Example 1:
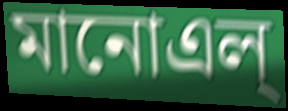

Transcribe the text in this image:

মানোএল্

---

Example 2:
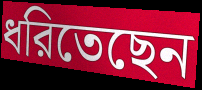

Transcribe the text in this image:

ধরিতেছেন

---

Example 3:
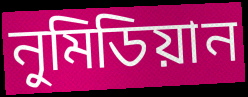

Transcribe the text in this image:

নুমিডিয়ান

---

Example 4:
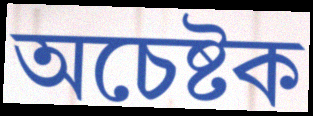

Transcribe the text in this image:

অচেষ্টক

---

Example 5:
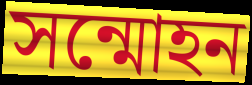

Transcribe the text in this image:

সন্মোহন